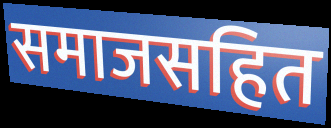
समाजसहित